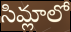
సిమ్లాలో